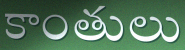
కాంతులు